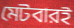
মেটবারই